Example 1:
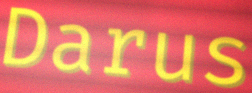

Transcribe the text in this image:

Darus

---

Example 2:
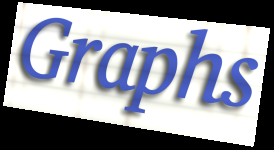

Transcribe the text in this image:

Graphs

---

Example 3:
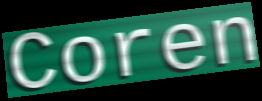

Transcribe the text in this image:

Coren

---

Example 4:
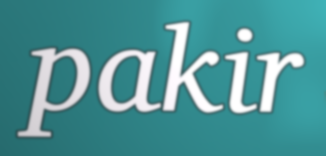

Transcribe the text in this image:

pakir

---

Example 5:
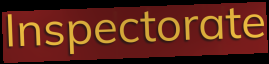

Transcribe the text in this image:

Inspectorate